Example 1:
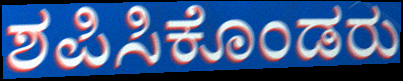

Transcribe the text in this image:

ಶಪಿಸಿಕೊಂಡರು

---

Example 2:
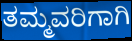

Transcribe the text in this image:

ತಮ್ಮವರಿಗಾಗಿ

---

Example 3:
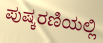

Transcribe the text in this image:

ಪುಷ್ಕರಣಿಯಲ್ಲಿ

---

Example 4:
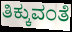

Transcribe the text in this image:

ತಿಕ್ಕುವಂತೆ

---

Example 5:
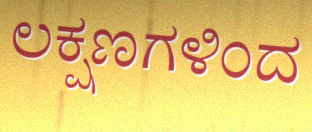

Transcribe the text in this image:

ಲಕ್ಷಣಗಳಿಂದ